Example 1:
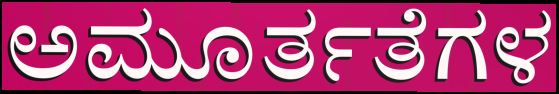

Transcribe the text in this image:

ಅಮೂರ್ತತೆಗಳ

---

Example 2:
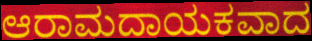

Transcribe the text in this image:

ಆರಾಮದಾಯಕವಾದ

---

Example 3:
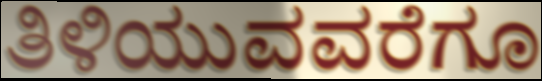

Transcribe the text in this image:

ತಿಳಿಯುವವರೆಗೂ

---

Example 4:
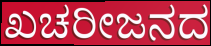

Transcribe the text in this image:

ಖಚರೀಜನದ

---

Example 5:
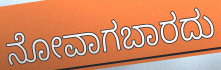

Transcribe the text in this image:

ನೋವಾಗಬಾರದು